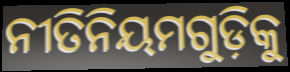
ନୀତିନିୟମଗୁଡ଼ିକୁ